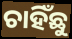
ଚାହିଁଛୁ